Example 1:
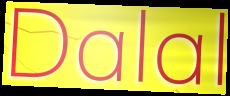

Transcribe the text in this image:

Dalal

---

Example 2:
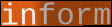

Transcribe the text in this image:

inform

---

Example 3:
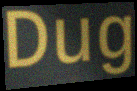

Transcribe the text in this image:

Dug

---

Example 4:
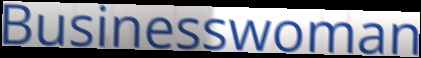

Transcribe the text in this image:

Businesswoman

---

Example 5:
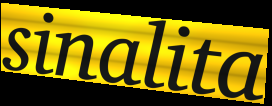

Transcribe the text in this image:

sinalita